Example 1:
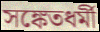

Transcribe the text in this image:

সঙ্কেতধর্মী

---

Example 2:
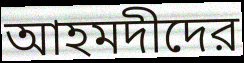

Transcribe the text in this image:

আহমদীদের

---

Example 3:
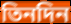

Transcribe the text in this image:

তিনদিন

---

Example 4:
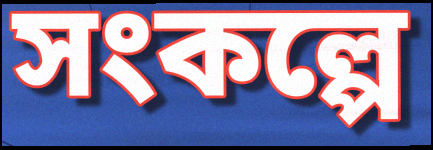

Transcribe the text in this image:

সংকল্পে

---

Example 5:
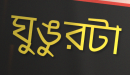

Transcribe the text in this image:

ঘুঙুরটা